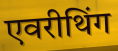
एवरीथिंग